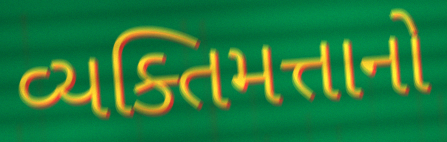
વ્યક્તિમત્તાનો